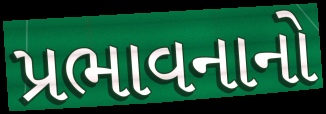
પ્રભાવનાનો